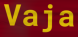
Vaja